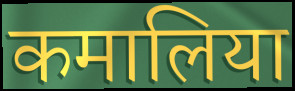
कमालिया